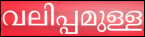
വലിപ്പമുള്ള